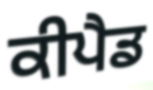
ਕੀਪੈਡ